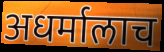
अधर्मालाच